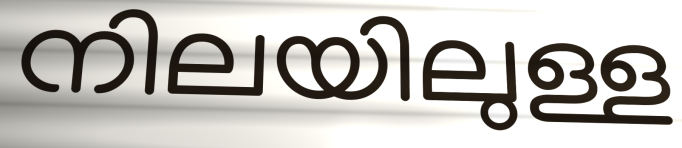
നിലയിലുള്ള